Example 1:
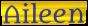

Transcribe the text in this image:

Aileen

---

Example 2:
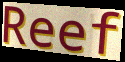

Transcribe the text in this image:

Reef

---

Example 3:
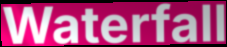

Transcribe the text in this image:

Waterfall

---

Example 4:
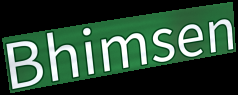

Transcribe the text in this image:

Bhimsen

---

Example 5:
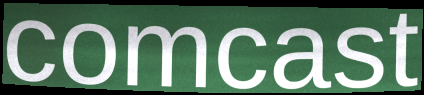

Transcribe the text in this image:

comcast